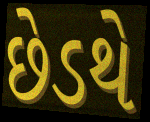
છેડથે